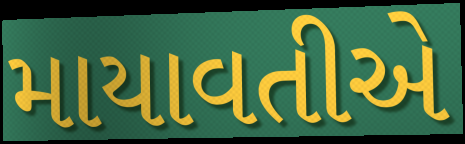
માયાવતીએ